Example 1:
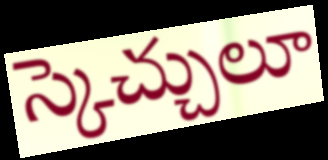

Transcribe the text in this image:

స్కెచ్చులూ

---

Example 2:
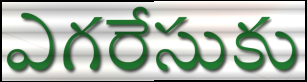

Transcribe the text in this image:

ఎగరేసుకు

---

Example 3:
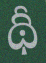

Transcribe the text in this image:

థీ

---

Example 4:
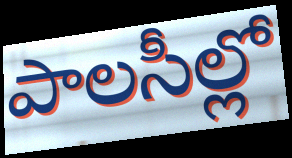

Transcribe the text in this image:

పాలసీల్లో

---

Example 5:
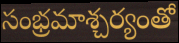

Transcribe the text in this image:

సంభ్రమాశ్చర్యంతో